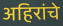
अहिरांचे